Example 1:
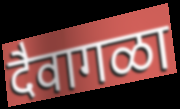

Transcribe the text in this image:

दैवागळा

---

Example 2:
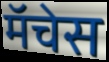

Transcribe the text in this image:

मॅचेस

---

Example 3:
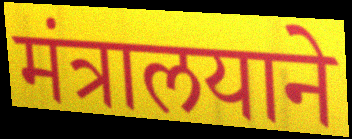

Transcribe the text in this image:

मंत्रालयाने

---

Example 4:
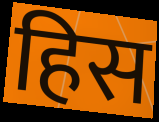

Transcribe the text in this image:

हिस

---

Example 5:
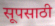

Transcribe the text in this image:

सूपसाठी